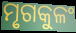
ମୃଗକୁଳଂ